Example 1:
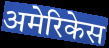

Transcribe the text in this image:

अमेरिकेस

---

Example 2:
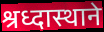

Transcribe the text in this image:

श्रध्दास्थाने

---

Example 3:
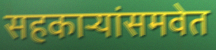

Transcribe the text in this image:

सहकाऱ्यांसमवेत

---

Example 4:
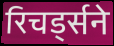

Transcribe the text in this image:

रिचर्ड्सने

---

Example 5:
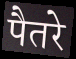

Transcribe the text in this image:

पैतरे